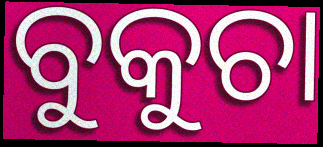
ବୁକୁଚା